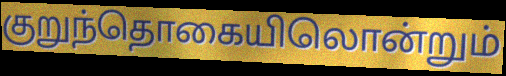
குறுந்தொகையிலொன்றும்